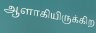
ஆளாகியிருக்கிற